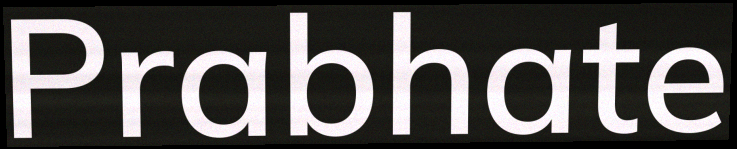
Prabhate